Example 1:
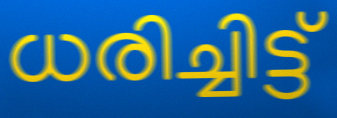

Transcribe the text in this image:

ധരിച്ചിട്ട്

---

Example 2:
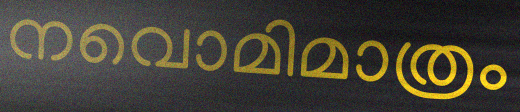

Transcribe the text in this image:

നവൊമിമാത്രം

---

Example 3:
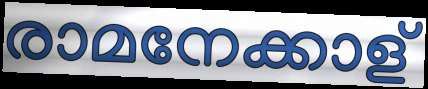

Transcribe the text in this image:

രാമനേക്കാള്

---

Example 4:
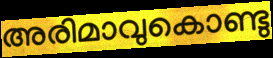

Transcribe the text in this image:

അരിമാവുകൊണ്ടു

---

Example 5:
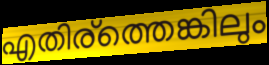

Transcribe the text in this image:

എതിര്ത്തെങ്കിലും